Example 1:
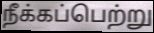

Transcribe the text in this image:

நீக்கப்பெற்று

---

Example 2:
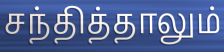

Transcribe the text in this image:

சந்தித்தாலும்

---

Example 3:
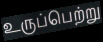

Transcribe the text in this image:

உருப்பெற்று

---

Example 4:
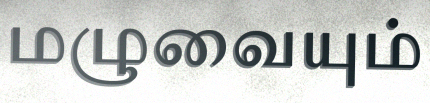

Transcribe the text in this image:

மழுவையும்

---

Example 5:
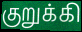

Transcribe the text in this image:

குறுக்கி